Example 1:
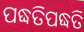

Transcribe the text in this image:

ପଦ୍ଧତିପଦ୍ଧତି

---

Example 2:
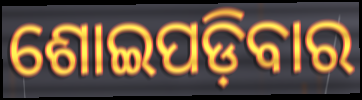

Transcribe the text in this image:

ଶୋଇପଡ଼ିବାର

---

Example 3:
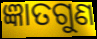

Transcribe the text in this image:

ଜ୍ଞାତଗୁଣ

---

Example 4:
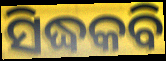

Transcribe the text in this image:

ସିଦ୍ଧକବି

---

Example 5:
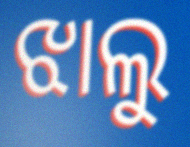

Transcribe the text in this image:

ଝାଲୁ